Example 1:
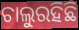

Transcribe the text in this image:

ଚାଲୁରହିଛି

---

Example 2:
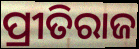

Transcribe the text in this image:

ପ୍ରୀତିରାଜ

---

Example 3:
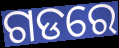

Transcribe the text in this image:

ଗଡରେ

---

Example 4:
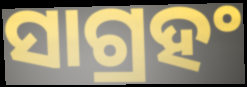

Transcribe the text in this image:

ସାଗ୍ରହଂ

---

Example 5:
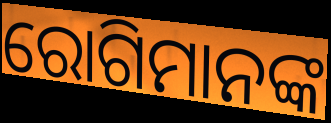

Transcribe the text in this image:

ରୋଗିମାନଙ୍କ